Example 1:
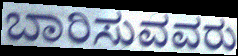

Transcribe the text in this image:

ಬಾರಿಸುವವರು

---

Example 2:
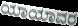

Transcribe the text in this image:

ಯಾಯಾವರ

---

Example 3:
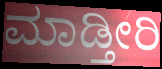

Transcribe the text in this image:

ಮಾಡ್ತೀರಿ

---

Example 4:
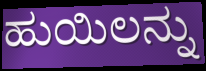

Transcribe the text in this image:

ಹುಯಿಲನ್ನು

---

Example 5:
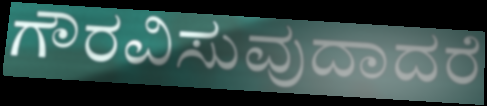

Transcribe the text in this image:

ಗೌರವಿಸುವುದಾದರೆ